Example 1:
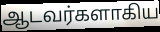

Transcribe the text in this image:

ஆடவர்களாகிய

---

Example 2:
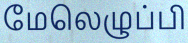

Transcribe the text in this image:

மேலெழுப்பி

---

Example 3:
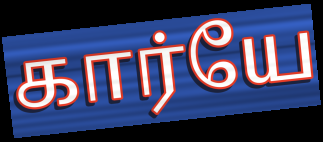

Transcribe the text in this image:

கார்யே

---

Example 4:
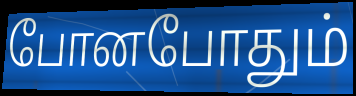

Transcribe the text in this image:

போனபோதும்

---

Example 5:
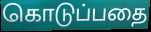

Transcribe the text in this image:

கொடுப்பதை